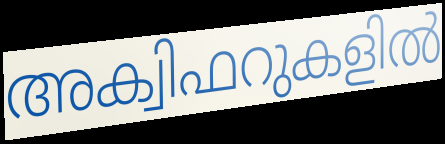
അക്വിഫറുകളിൽ